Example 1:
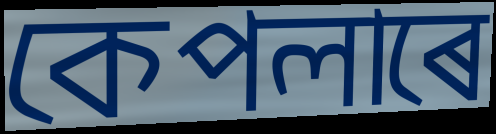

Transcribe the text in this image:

কেপলাৰে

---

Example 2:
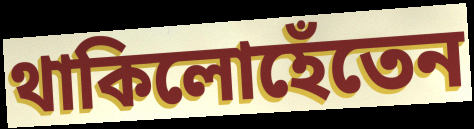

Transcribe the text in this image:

থাকিলোহেঁতেন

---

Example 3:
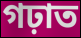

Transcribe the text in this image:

গঢ়াত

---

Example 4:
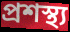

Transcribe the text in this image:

প্ৰশস্থ্য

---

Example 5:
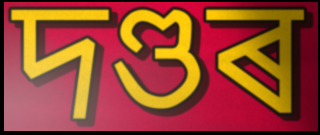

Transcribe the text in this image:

দণ্ডৰ